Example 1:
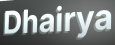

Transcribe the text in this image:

Dhairya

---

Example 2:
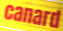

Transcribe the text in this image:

canard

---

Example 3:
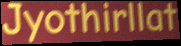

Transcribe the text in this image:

Jyothirllat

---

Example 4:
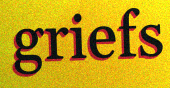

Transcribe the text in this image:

griefs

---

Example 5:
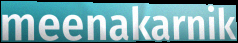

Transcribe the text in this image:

meenakarnik